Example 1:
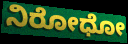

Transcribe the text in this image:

ನಿರೋಧೋ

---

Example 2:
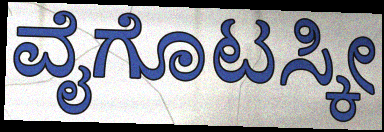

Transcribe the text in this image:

ವೈಗೊಟಸ್ಕೀ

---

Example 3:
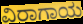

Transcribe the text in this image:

ವಿರಾಗಾಯ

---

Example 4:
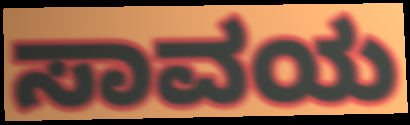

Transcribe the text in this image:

ಸಾವಯ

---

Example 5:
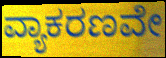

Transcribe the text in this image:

ವ್ಯಾಕರಣವೇ